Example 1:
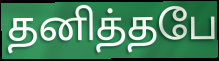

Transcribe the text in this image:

தனித்தபே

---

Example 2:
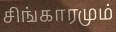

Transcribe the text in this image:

சிங்காரமும்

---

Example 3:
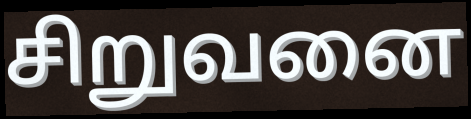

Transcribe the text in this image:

சிறுவனை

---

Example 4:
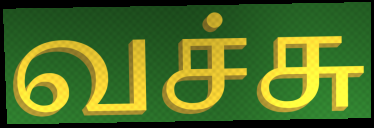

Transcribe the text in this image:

வச்சு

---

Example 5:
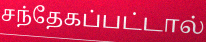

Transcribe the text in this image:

சந்தேகப்பட்டால்